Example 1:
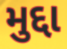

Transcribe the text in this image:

મુદ્દા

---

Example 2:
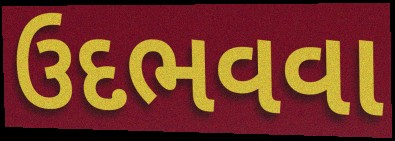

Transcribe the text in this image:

ઉદભવવા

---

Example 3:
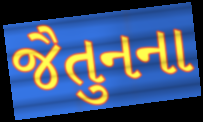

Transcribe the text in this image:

જૈતુનના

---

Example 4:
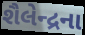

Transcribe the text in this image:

શૈલેન્દ્રના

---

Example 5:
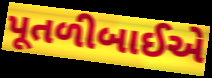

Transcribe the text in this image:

પૂતળીબાઈએ